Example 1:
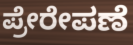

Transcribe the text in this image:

ಪ್ರೇರೇಪಣೆ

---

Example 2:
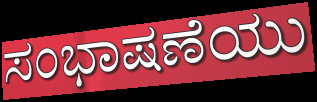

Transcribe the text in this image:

ಸಂಭಾಷಣೆಯು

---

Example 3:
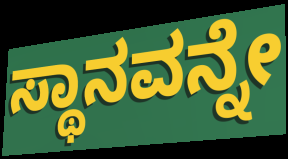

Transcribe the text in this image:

ಸ್ಥಾನವನ್ನೇ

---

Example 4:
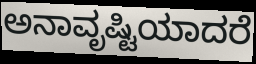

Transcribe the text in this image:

ಅನಾವೃಷ್ಟಿಯಾದರೆ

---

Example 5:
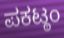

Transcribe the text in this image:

ಪಕಟ್ಠಂ